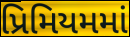
પ્રિમિયમમાં